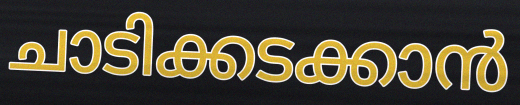
ചാടിക്കടക്കാൻ